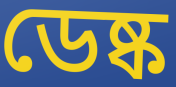
ডেষ্ক